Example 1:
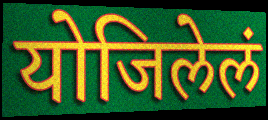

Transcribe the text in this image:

योजिलेलं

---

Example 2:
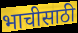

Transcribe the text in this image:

भाचीसाठी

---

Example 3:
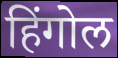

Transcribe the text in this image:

हिंगोल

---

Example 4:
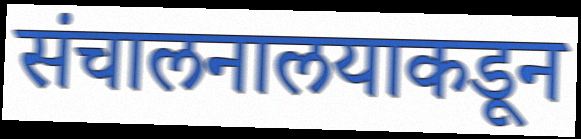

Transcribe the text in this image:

संचालनालयाकडून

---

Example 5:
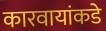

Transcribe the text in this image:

कारवायांकडे